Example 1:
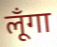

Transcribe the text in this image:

लूँगा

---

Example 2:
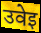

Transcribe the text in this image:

उवेइ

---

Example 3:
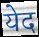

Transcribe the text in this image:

येद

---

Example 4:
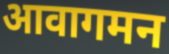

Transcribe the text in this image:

आवागमन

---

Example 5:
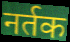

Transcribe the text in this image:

नर्तक